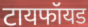
टायफॉयड